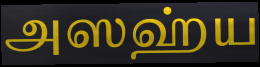
அஸஹ்ய